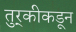
तुर्कीकडून